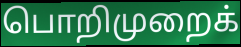
பொறிமுறைக்